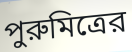
পুরুমিত্রের